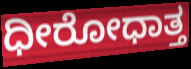
ಧೀರೋಧಾತ್ತ